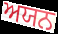
ਅਯਨ